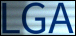
LGA